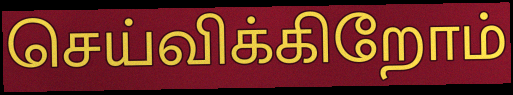
செய்விக்கிறோம்